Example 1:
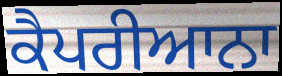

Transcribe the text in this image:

ਕੈਪਰੀਆਨਾ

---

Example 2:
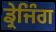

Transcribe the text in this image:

ਡ੍ਰੇਜਿੰਗ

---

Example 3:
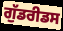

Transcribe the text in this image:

ਗੁੱਡਰੀਡਸ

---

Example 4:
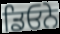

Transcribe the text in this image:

ਡਿਓਨੇ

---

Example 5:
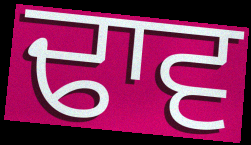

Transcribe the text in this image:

ਢਾਵ